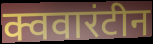
क्ववारंटीन